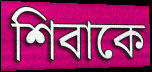
শিবাকে